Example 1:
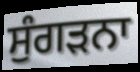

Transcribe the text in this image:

ਸੁੰਗੜਨਾ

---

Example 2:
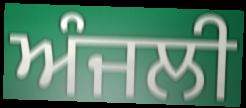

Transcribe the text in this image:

ਅੰਜਲੀ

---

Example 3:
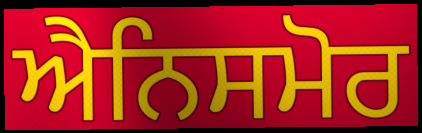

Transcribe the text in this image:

ਐਨਿਸਮੋਰ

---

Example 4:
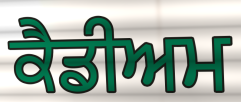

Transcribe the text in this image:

ਕੈਡੀਅਮ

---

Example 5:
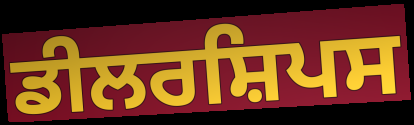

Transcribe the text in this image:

ਡੀਲਰਸ਼ਿਪਸ